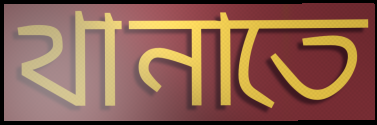
থানাতে